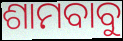
ଶାମବାବୁ